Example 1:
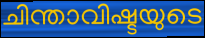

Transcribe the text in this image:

ചിന്താവിഷ്ടയുടെ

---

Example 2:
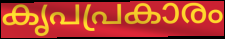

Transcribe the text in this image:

കൃപപ്രകാരം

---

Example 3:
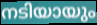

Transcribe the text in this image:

നടിയായും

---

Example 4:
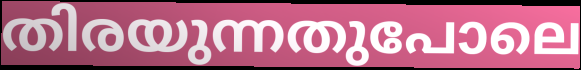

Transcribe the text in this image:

തിരയുന്നതുപോലെ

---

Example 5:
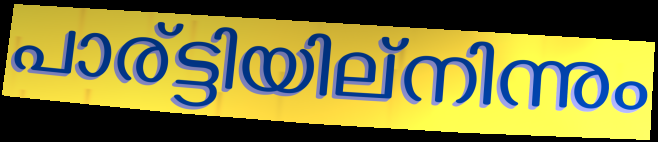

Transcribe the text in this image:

പാര്ട്ടിയില്നിന്നും